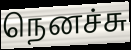
நெனச்சு